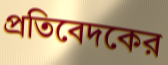
প্রতিবেদকের